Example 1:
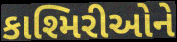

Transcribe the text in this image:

કાશ્મિરીઓને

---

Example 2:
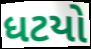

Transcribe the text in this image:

ધટયો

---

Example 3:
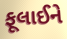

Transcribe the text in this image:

ફૂલાઈને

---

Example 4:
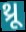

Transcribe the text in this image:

થ્રૂ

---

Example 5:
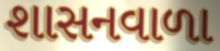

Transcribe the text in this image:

શાસનવાળા